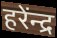
हरेंन्द्र